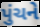
પુંચને